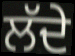
ਲੱਦੇ